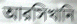
আরসিখানি